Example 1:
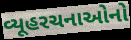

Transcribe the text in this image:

વ્યૂહરચનાઓનો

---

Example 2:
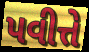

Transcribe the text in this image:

પવીત્તે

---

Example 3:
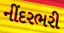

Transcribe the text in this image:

નીંદરભરી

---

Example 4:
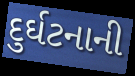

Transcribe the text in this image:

દુર્ઘટનાની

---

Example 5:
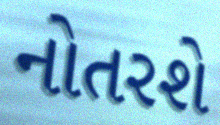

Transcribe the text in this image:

નોતરશે